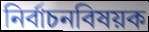
নির্বাচনবিষয়ক